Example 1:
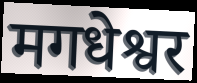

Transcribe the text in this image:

मगधेश्वर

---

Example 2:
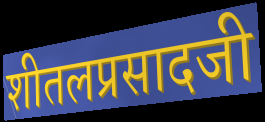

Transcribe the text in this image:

शीतलप्रसादजी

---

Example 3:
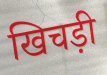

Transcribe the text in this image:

खिचड़ी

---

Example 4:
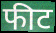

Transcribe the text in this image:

फीट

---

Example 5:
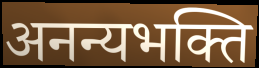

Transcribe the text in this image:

अनन्यभक्ति